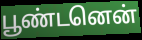
பூண்டனென்